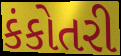
કંકોતરી